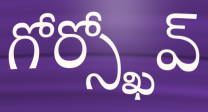
గోర్స్ఖోవ్